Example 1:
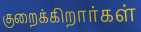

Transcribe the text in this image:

குறைக்கிறார்கள்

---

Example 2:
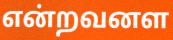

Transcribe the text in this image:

என்றவனள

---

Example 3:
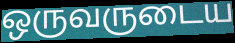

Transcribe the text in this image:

ஒருவருடைய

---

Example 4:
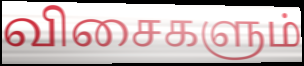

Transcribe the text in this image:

விசைகளும்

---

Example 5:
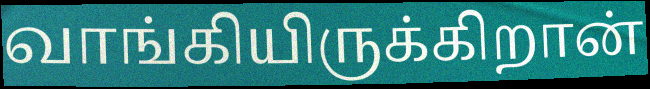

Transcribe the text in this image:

வாங்கியிருக்கிறான்